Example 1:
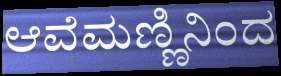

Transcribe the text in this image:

ಆವೆಮಣ್ಣಿನಿಂದ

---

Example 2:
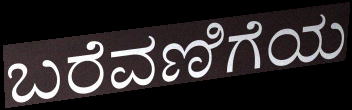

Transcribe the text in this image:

ಬರೆವಣಿಗೆಯ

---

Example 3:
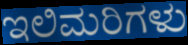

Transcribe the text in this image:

ಇಲಿಮರಿಗಳು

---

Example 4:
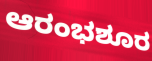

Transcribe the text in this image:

ಆರಂಭಶೂರ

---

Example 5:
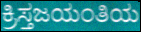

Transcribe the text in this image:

ಕ್ರಿಸ್ತಜಯಂತಿಯ